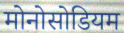
मोनोसोडियम